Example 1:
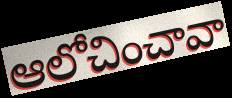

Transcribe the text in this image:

ఆలోచించావా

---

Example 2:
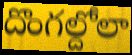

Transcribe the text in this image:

దొంగల్దోలా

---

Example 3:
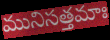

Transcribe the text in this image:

మునిసత్తమాః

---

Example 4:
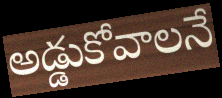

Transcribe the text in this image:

అడ్డుకోవాలనే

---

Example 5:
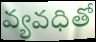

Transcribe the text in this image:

వ్యవధితో